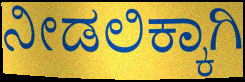
ನೀಡಲಿಕ್ಕಾಗಿ